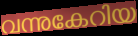
വന്നുകേറിയ